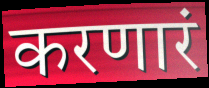
करणारं